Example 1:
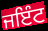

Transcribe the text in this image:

ਜਇੰਟ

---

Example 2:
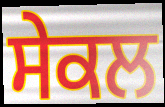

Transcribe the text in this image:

ਸੇਕਲ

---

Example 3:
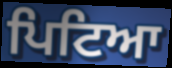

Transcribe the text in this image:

ਪਿਟਿਆ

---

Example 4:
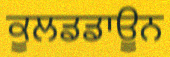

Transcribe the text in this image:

ਕੂਲਡਡਾਊਨ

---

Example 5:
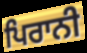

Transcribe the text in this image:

ਪਿਰਾਨੀ